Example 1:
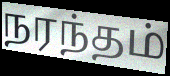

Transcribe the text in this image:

நரந்தம்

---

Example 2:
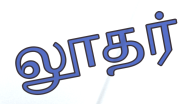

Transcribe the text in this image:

லூதர்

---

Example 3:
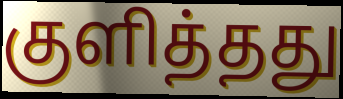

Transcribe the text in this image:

குளித்தது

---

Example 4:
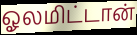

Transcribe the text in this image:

ஓலமிட்டான்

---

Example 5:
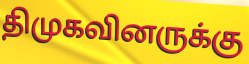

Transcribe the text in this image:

திமுகவினருக்கு